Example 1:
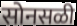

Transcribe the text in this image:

सोनसळी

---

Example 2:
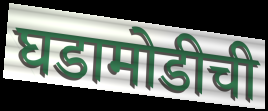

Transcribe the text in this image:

घडामोडीची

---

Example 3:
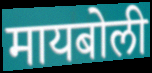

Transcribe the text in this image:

मायबोली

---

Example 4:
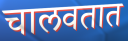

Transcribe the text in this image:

चालवतात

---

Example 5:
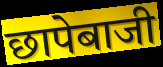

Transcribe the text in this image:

छापेबाजी